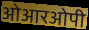
ओआरओपी